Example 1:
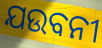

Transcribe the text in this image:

ଯଉବନୀ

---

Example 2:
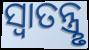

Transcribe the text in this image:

ସ୍ବାତନ୍ତ୍ରୢ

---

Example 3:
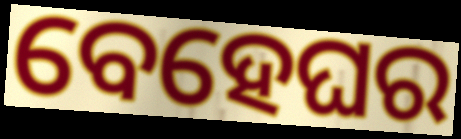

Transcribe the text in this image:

ବେହେଘର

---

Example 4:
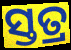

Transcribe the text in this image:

ସ୍ତତ୍ର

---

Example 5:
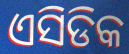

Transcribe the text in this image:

ଏସିଡିକ